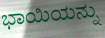
ಭಾಯಿಯನ್ನು